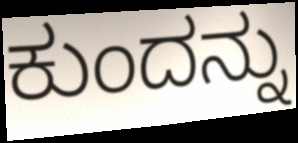
ಕುಂದನ್ನು